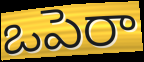
ఒపెరా